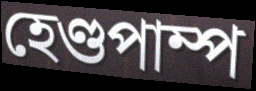
হেণ্ডপাম্প